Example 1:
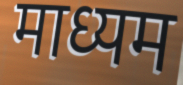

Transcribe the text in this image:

माध्यम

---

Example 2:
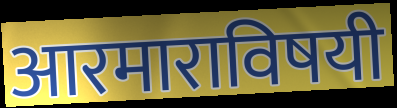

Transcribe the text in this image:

आरमाराविषयी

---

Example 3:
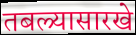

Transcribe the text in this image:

तबल्यासारखे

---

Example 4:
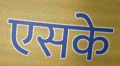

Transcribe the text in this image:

एसके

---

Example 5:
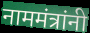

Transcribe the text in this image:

नाममंत्रांनी